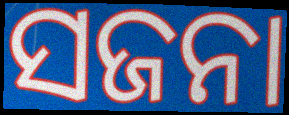
ସଜନା